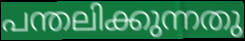
പന്തലിക്കുന്നതു